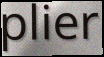
plier